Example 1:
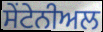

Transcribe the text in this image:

ਸੇਂਟੇਨੀਅਲ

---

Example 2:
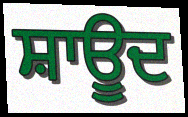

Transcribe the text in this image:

ਸ਼ਾਊਦ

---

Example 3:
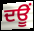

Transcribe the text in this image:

ਦਊਂ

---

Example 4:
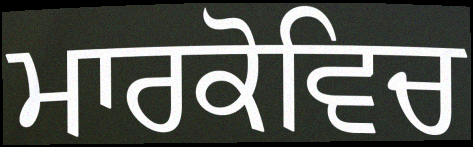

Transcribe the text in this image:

ਮਾਰਕੋਵਿਚ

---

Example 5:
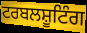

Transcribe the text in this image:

ਟਰਬਲਸ਼ੂਟਿੰਗ